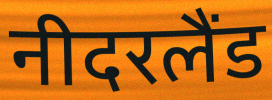
नीदरलैंड